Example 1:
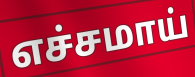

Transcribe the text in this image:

எச்சமாய்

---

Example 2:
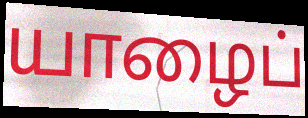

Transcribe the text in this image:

யாழைப்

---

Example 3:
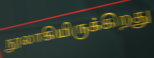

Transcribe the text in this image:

நூலாகியிருக்கிறது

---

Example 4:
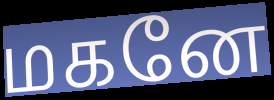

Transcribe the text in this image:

மகனே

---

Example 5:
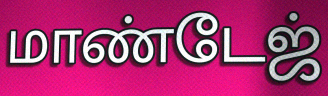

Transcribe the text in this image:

மாண்டேஜ்